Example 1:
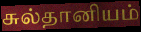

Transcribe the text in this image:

சுல்தானியம்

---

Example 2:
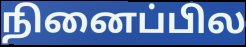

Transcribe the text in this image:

நினைப்பில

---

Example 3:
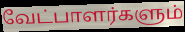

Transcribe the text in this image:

வேட்பாளர்களும்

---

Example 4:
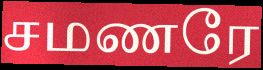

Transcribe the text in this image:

சமணரே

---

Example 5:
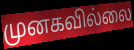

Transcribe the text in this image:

முனகவில்லை